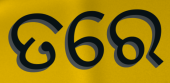
ତରେ